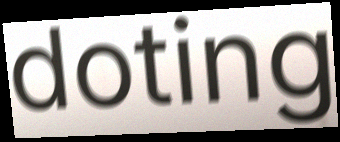
doting